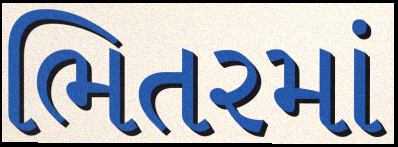
ભિતરમાં